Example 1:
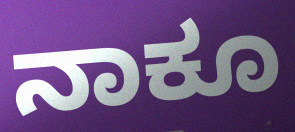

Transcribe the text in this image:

ನಾಕೂ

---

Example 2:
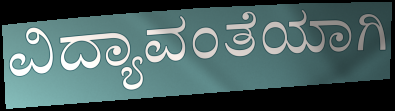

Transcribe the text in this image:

ವಿದ್ಯಾವಂತೆಯಾಗಿ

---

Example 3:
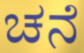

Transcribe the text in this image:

ಚನೆ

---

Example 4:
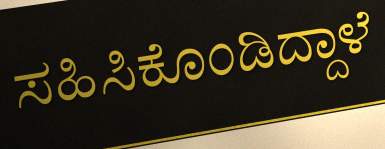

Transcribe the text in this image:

ಸಹಿಸಿಕೊಂಡಿದ್ದಾಳೆ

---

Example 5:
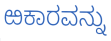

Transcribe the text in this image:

ಱಕಾರವನ್ನು